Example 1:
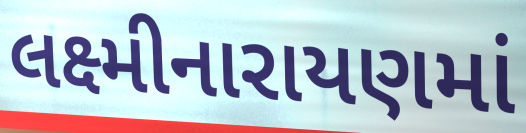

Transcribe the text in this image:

લક્ષ્મીનારાયણમાં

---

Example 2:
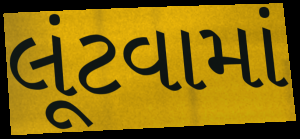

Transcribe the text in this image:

લૂંટવામાં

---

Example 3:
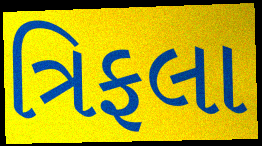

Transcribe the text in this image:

ત્રિફલા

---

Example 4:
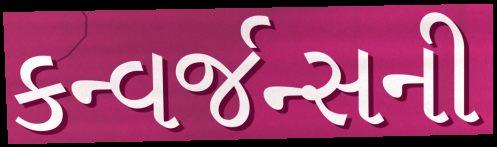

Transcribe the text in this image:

કન્વર્જન્સની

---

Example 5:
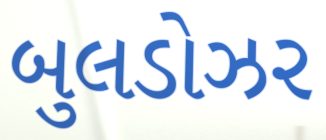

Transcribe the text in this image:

બુલડોઝર